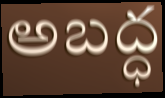
అబద్ధ